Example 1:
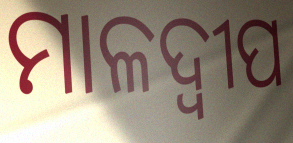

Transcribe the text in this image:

ମାଳଦ୍ଵୀପ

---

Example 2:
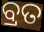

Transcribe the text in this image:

ବ୍ରତ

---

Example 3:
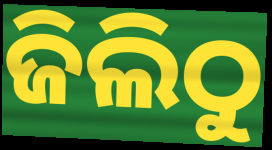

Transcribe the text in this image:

ଜିଲିଠୁ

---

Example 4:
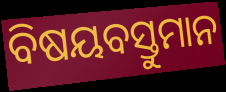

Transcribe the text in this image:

ବିଷୟବସ୍ତୁମାନ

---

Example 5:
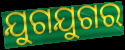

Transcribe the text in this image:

ଯୁଗଯୁଗର